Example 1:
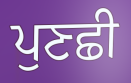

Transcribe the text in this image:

ਪੁਣਛੀ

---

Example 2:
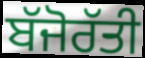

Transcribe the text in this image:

ਬੱਜੋਰੱਤੀ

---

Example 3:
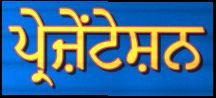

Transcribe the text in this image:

ਪ੍ਰੇਜ਼ੇਂਟੇਸ਼ਨ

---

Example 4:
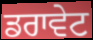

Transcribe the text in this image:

ਡਰਾਵੇਟ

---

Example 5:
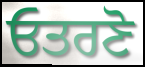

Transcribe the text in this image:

ਓਤਰਣੋ